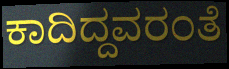
ಕಾದಿದ್ದವರಂತೆ